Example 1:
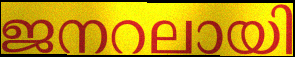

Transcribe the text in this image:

ജനറലായി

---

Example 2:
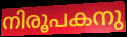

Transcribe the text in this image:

നിരൂപകനു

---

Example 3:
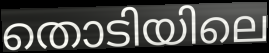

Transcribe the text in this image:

തൊടിയിലെ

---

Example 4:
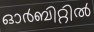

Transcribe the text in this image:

ഓർബിറ്റിൽ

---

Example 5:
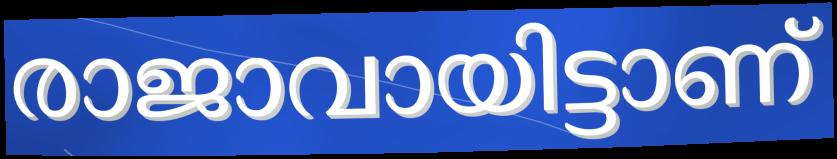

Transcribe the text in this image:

രാജാവായിട്ടാണ്